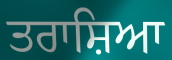
ਤਰਾਸ਼ਿਆ